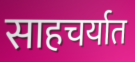
साहचर्यात